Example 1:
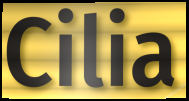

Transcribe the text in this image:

Cilia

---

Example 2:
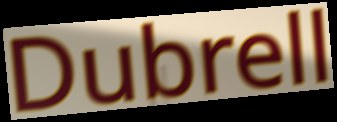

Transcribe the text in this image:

Dubrell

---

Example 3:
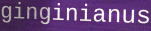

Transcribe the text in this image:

ginginianus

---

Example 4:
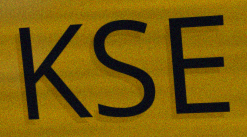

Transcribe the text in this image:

KSE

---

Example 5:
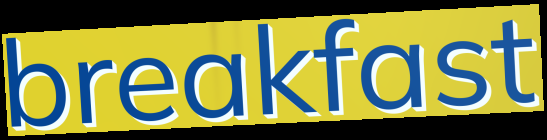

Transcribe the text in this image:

breakfast